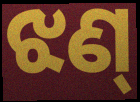
ଝଣ୍